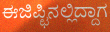
ಈಜಿಪ್ಟಿನಲ್ಲಿದ್ದಾಗ